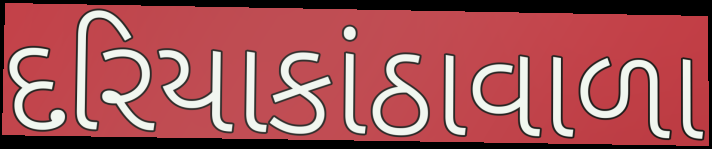
દરિયાકાંઠાવાળા